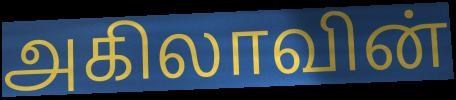
அகிலாவின்